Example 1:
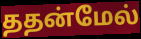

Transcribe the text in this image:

ததன்மேல்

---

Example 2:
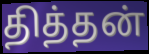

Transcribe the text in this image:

தித்தன்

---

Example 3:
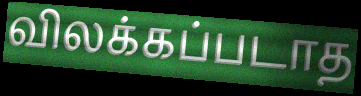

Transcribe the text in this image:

விலக்கப்படாத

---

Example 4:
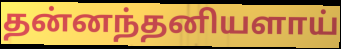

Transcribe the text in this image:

தன்னந்தனியளாய்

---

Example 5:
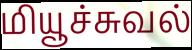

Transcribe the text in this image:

மியூச்சுவல்